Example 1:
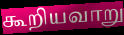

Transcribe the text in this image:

கூறியவாறு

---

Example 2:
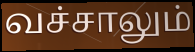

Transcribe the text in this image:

வச்சாலும்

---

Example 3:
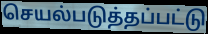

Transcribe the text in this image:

செயல்படுத்தப்பட்டு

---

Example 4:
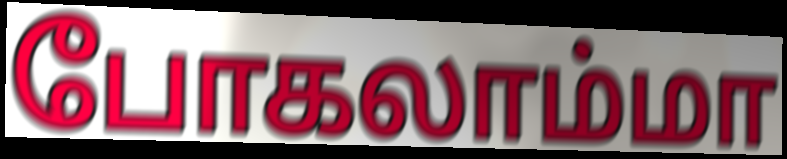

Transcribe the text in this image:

போகலாம்மா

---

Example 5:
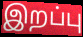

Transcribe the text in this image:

இறப்பு